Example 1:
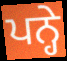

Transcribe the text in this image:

ਪਨ੍ਹੇ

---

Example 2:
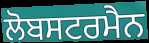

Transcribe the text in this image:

ਲੋਬਸਟਰਮੈਨ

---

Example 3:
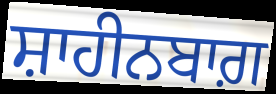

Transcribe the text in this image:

ਸ਼ਾਹੀਨਬਾਗ਼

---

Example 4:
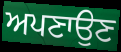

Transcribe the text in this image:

ਅਪਣਾਉਣ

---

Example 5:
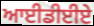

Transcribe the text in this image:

ਆਈਡੀਈਏ